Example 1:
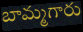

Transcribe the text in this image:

బామ్మగారు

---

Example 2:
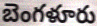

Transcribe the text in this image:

బెంగళూరు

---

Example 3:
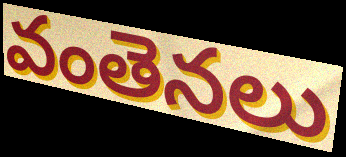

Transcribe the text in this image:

వంతెనలు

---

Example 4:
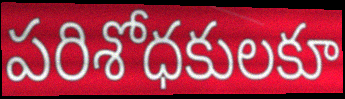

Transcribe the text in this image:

పరిశోధకులకూ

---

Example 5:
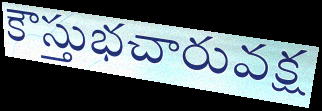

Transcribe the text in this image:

కౌస్తుభచారువక్ష